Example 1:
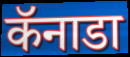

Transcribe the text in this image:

कॅनाडा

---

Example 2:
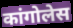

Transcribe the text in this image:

कांगोलेस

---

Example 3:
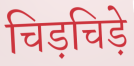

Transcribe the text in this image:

चिड़चिड़े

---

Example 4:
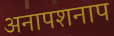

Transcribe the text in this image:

अनापशनाप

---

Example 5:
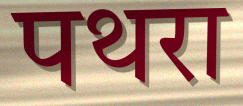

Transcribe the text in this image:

पथरा